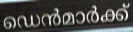
ഡെൻമാർക്ക്